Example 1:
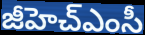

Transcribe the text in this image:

జీహెచ్ఎంసీ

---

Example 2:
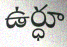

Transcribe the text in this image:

ఉర్ధూ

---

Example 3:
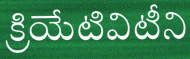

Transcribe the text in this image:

క్రియేటివిటీని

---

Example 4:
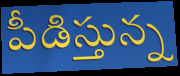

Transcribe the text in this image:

పీడిస్తున్న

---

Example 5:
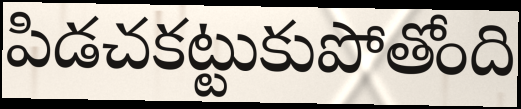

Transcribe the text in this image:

పిడచకట్టుకుపోతోంది